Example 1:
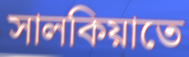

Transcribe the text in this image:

সালকিয়াতে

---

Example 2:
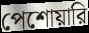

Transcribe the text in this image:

পেশোয়ারি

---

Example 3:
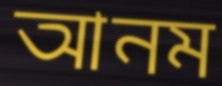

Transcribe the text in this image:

আনম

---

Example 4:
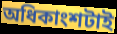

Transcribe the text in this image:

অধিকাংশটাই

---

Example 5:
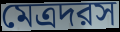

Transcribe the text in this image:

মেত্রদরস